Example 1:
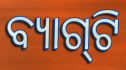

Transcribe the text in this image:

ବ୍ୟାଗ୍‌ଟି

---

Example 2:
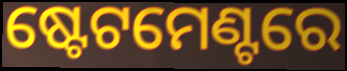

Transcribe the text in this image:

ଷ୍ଟେଟମେଣ୍ଟରେ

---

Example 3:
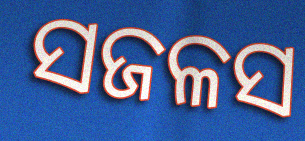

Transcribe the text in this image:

ସଜଳସ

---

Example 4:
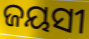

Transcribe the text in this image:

ଜୟସୀ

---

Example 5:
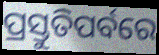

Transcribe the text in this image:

ପ୍ରସ୍ତୁତିପର୍ବରେ